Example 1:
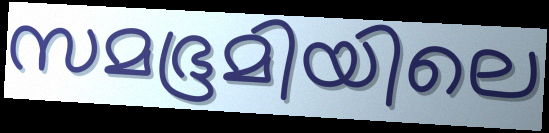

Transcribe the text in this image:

സമഭൂമിയിലെ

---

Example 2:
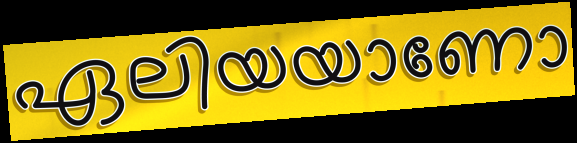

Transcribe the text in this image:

ഏലിയയാണോ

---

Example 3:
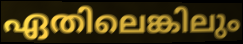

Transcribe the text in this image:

ഏതിലെങ്കിലും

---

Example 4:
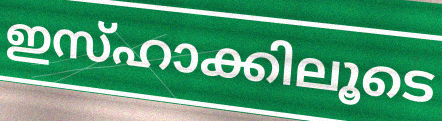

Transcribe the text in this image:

ഇസ്ഹാക്കിലൂടെ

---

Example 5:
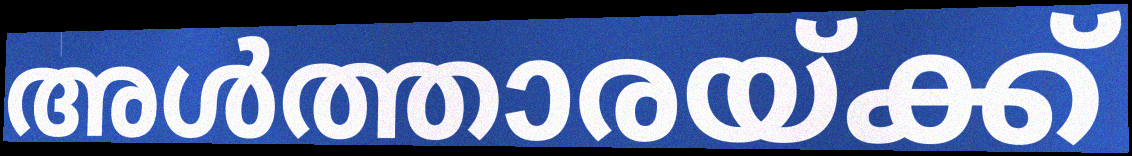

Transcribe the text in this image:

അൾത്താരയ്ക്ക്